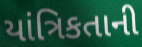
યાંત્રિકતાની